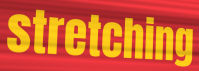
stretching